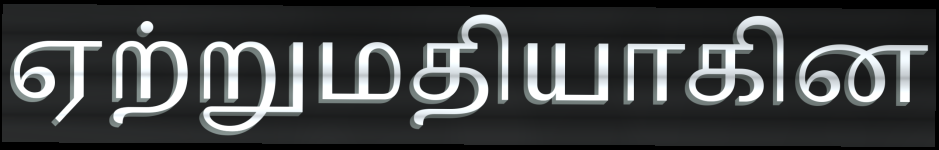
ஏற்றுமதியாகின